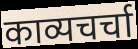
काव्यचर्चा